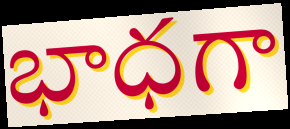
భాధగా